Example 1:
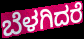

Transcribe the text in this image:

ಬೆಳಗಿದರೆ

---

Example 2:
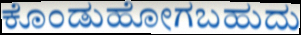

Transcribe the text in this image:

ಕೊಂಡುಹೋಗಬಹುದು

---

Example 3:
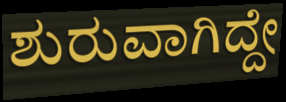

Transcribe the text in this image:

ಶುರುವಾಗಿದ್ದೇ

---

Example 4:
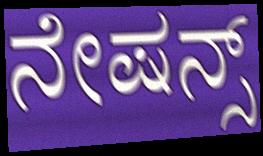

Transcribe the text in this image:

ನೇಷನ್ಸ್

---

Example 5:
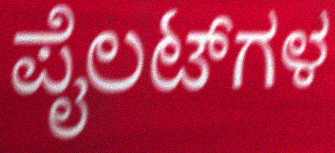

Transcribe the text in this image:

ಪೈಲಟ್‌ಗಳ